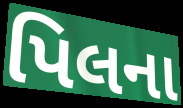
પિલના